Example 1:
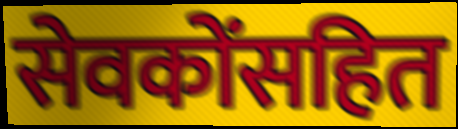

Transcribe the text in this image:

सेवकोंसहित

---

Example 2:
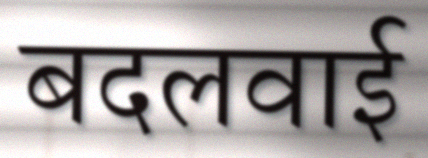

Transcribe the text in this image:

बदलवाई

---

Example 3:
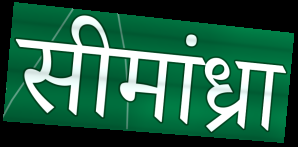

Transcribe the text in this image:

सीमांध्रा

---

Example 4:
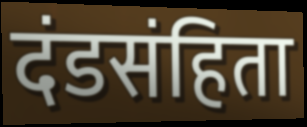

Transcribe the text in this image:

दंडसंहिता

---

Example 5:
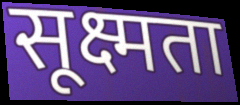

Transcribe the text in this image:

सूक्ष्मता